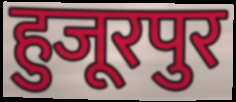
हुजूरपुर